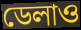
ডেলাও